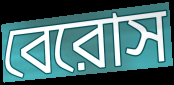
বেরোস